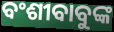
ବଂଶୀବାବୁଙ୍କ